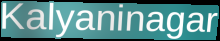
Kalyaninagar